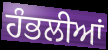
ਹੰਭਲੀਆਂ